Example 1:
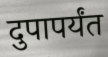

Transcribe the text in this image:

दुपापर्यंत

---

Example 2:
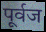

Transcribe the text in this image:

पूर्वज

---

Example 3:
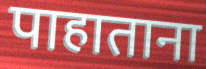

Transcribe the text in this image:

पाहाताना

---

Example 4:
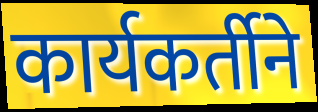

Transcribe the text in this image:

कार्यकर्तीने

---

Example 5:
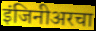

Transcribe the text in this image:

इंजिनीअरचा